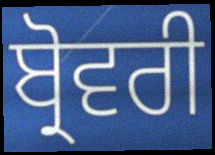
ਬ੍ਰੋਵਰੀ